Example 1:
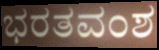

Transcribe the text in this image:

ಭರತವಂಶ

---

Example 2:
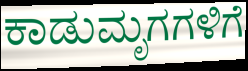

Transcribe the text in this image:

ಕಾಡುಮೃಗಗಳಿಗೆ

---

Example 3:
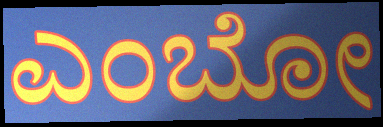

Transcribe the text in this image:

ಎಂಬೋ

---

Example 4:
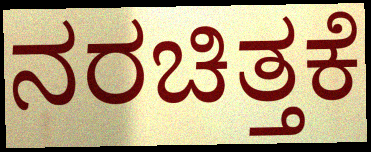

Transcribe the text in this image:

ನರಚಿತ್ತಕೆ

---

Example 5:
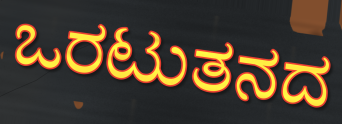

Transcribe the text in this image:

ಒರಟುತನದ